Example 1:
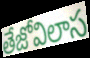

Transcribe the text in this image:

తేజోవిలాస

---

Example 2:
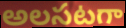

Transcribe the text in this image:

అలసటగా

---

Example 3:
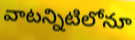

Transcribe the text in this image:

వాటన్నిటిలోనూ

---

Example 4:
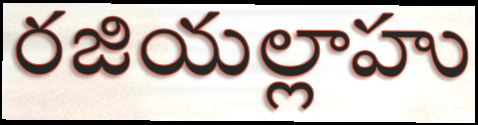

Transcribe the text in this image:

రజియల్లాహు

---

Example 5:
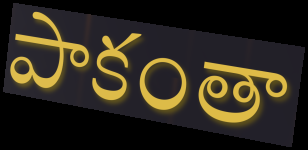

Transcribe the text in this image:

పాకంతా